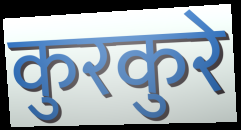
कुरकुरे